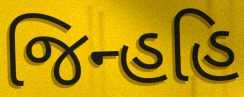
જિન્હહિ